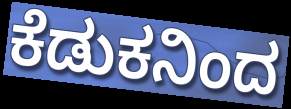
ಕೆಡುಕನಿಂದ